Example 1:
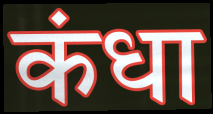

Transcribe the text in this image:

कंधा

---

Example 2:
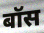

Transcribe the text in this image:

बॉस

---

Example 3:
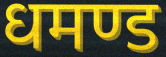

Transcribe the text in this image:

धमण्ड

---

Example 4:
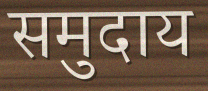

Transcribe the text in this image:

समुदाय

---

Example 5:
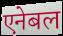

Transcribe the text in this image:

एनेबल